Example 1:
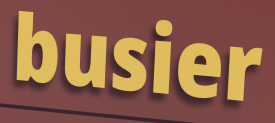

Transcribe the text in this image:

busier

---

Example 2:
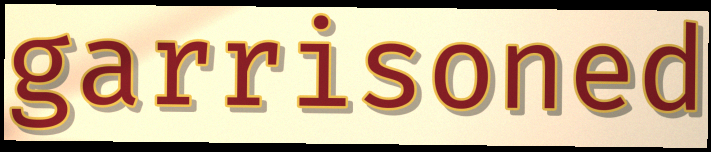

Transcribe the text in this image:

garrisoned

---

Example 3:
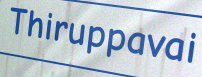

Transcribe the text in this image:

Thiruppavai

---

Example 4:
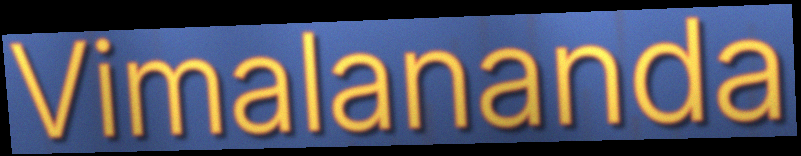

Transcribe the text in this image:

Vimalananda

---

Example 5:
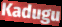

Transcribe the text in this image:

Kadugu